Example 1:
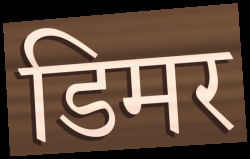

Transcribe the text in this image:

डिमर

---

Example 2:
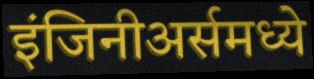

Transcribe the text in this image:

इंजिनीअर्समध्ये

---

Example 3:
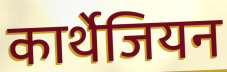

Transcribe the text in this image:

कार्थेजियन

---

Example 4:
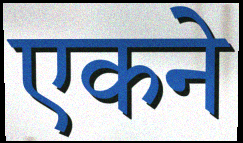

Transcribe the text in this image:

एकने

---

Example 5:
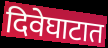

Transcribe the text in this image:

दिवेघाटात